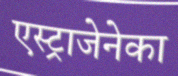
एस्ट्राजेनेका